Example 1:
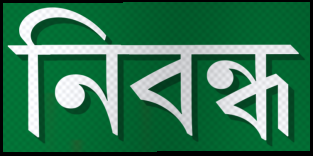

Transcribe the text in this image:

নিবন্ধ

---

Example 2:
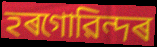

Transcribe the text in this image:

হৰগোৱিন্দৰ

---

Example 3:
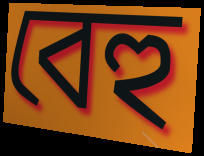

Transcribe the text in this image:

বেহু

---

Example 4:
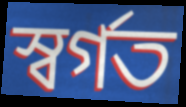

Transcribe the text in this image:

স্বৰ্গত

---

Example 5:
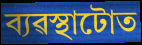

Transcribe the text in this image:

ব্যৱস্থাটোত